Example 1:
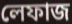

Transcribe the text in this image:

লেফাজ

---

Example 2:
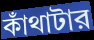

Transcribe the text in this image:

কাঁথাটার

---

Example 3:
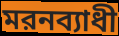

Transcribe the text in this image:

মরনব্যাধী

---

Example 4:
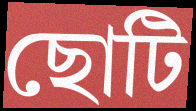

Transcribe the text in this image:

ছোটি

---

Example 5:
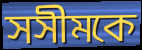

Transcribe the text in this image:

সসীমকে